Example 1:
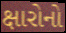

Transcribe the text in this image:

ક્ષારોનો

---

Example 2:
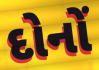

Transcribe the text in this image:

દોનોં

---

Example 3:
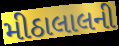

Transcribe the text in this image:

મીઠાલાલની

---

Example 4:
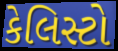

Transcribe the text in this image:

કેલિસ્ટો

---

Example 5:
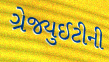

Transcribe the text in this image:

ગ્રેજ્યુઈટીની